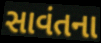
સાવંતના